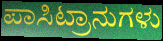
ಪಾಸಿಟ್ರಾನುಗಳು